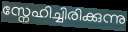
സ്നേഹിച്ചിരിക്കുന്നു